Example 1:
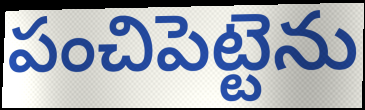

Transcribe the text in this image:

పంచిపెట్టెను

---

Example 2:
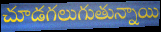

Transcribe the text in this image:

చూడగలుగుతున్నాయి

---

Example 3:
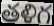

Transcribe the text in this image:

తళిగ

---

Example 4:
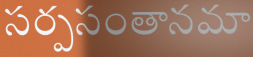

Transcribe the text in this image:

సర్పసంతానమా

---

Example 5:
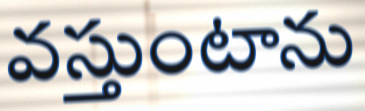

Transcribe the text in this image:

వస్తుంటాను